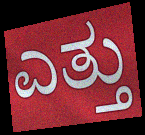
ಎತ್ತು